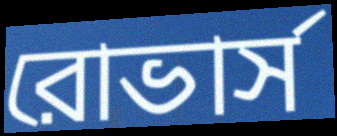
রোভার্স